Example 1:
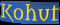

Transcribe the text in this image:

Kohut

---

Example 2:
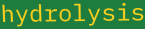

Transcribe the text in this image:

hydrolysis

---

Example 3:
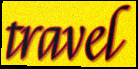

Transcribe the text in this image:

travel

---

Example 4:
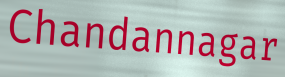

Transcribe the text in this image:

Chandannagar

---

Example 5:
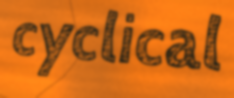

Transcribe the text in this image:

cyclical